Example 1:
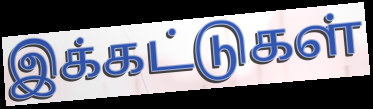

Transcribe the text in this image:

இக்கட்டுகள்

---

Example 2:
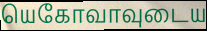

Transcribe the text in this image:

யெகோவாவுடைய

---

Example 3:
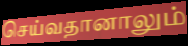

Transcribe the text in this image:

செய்வதானாலும்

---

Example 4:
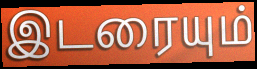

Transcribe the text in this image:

இடரையும்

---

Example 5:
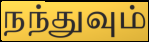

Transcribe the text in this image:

நந்துவும்